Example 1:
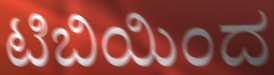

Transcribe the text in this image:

ಟಿಬಿಯಿಂದ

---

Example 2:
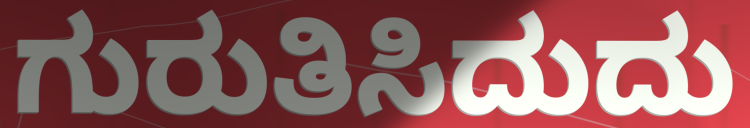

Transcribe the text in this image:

ಗುರುತಿಸಿದುದು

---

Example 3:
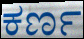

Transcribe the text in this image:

ಕರ್ಣ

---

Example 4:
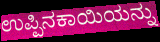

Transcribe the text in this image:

ಉಪ್ಪಿನಕಾಯಿಯನ್ನು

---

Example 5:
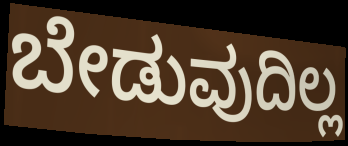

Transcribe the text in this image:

ಬೇಡುವುದಿಲ್ಲ